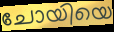
ചോയിയെ